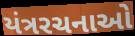
યંત્રરચનાઓ